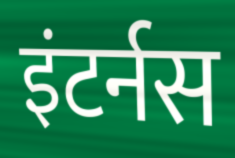
इंटर्नस